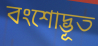
বংশোদ্ভূত